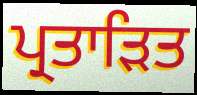
ਪ੍ਰਤਾੜਿਤ